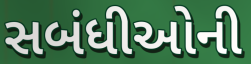
સબંધીઓની